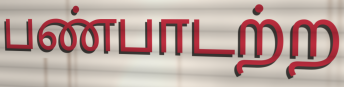
பண்பாடற்ற